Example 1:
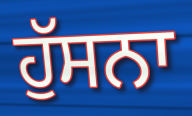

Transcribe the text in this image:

ਹੁੱਸਨਾ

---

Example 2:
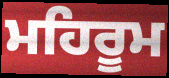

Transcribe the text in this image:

ਮਹਿਰੂਮ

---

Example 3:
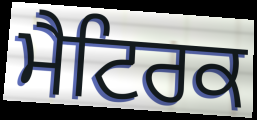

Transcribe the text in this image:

ਮੈਟਿਰਕ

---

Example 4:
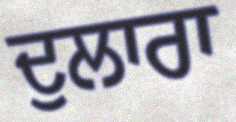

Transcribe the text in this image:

ਦੁਲਾਰਾ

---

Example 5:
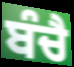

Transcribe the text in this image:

ਬੰਚੈ